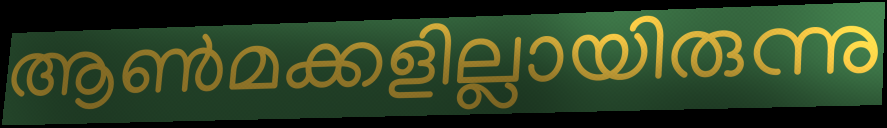
ആൺമക്കളില്ലായിരുന്നു